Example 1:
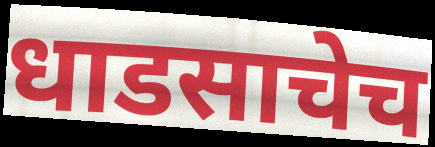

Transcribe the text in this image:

धाडसाचेच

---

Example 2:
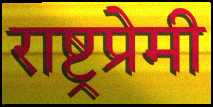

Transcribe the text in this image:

राष्ट्रप्रेमी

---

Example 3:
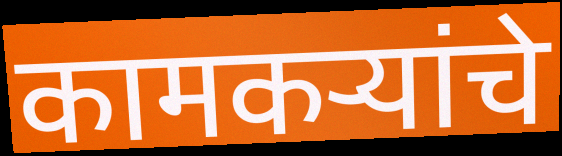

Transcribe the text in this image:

कामकऱ्यांचे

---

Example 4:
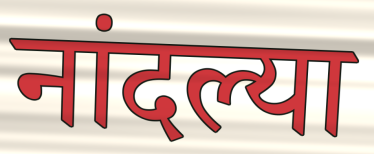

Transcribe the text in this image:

नांदल्या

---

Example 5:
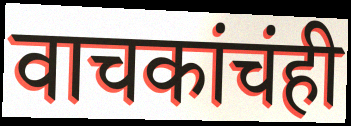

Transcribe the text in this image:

वाचकांचंही